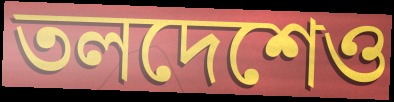
তলদেশেও